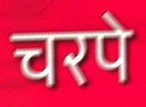
चरपे